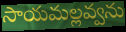
సాయమల్లవ్వను